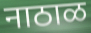
नाठाळ